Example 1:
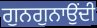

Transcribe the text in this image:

ਗੁਨਗੁਨਾਉਂਦੀ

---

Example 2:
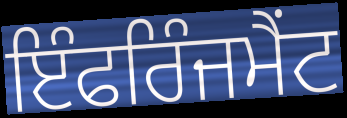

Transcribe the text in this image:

ਇੰਫਰਿੰਜਮੈਂਟ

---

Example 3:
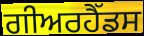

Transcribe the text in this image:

ਗੀਅਰਹੈੱਡਸ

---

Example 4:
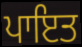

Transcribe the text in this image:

ਪਾਇਤ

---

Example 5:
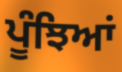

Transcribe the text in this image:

ਪੂੰਝਿਆਂ